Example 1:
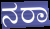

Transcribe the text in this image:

ನರಾ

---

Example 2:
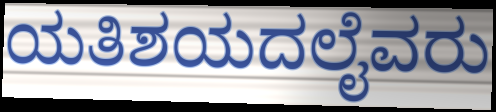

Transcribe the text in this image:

ಯತಿಶಯದಲೈವರು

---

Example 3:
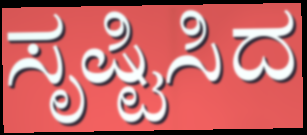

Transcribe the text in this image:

ಸೃಷ್ಟಿಸಿದ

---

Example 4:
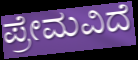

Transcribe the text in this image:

ಪ್ರೇಮವಿದೆ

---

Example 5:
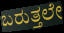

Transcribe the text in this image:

ಬರುತ್ತಲೇ